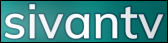
sivantv